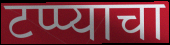
टप्प्याचा